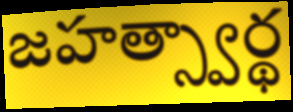
జహత్స్వార్థ